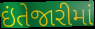
ઇંતેજારીમાં